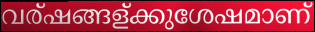
വര്ഷങ്ങള്ക്കുശേഷമാണ്